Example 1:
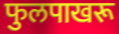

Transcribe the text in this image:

फुलपाखरू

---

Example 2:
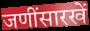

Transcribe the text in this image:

जणींसारखें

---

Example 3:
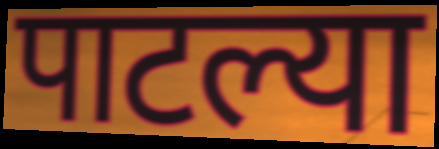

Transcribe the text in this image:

पाटल्या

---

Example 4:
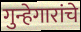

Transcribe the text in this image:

गुन्हेगारांचे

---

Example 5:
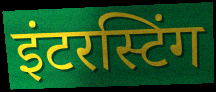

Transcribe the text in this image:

इंटरस्टिंग